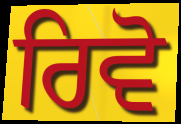
ਰਿਵੋ